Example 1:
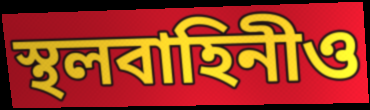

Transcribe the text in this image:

স্থলবাহিনীও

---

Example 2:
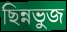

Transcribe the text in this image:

ছিন্নভুজ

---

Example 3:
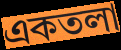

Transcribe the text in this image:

একতলা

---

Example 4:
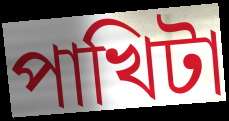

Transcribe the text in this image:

পাখিটা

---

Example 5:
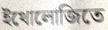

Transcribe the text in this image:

ইথোলোজিতে